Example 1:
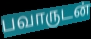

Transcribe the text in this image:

பவாருடன்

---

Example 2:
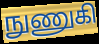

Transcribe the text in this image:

நுணுகி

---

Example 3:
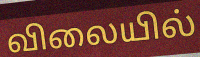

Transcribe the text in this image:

விலையில்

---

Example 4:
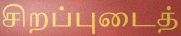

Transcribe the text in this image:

சிறப்புடைத்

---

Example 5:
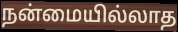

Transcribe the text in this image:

நன்மையில்லாத